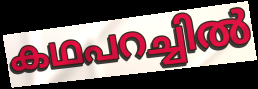
കഥപറച്ചിൽ